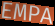
EMPA